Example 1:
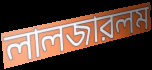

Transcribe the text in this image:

লালজারলম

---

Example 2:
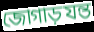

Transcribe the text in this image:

জোগাড়যন্ত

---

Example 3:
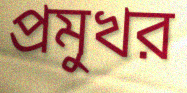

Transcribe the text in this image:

প্রমুখর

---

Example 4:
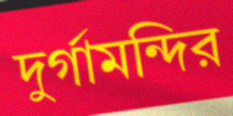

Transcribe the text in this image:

দুর্গামন্দির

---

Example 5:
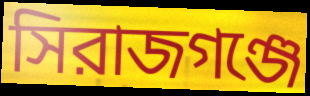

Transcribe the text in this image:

সিরাজগঞ্জে